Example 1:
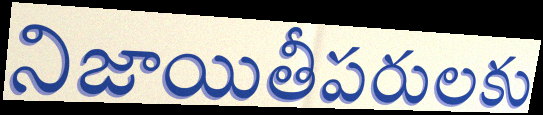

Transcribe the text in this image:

నిజాయితీపరులకు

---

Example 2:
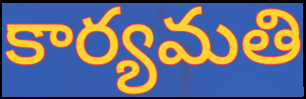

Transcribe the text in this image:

కార్యమతి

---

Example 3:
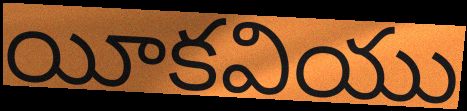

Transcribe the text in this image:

యీకవియు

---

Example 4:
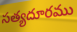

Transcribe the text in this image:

సత్యదూరము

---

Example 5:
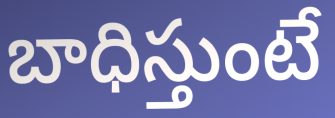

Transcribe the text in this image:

బాధిస్తుంటే